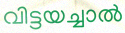
വിട്ടയച്ചാൽ